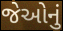
જેઓનું